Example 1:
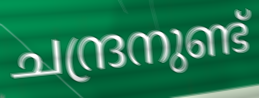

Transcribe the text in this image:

ചന്ദ്രനുണ്ട്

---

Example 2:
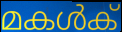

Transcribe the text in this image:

മകൾക്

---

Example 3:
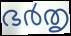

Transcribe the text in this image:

ഭർതൃ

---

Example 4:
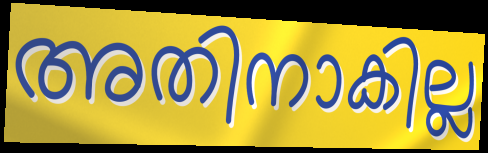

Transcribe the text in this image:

അതിനാകില്ല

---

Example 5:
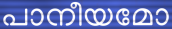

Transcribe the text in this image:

പാനീയമോ